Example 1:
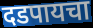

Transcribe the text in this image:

दडपायचा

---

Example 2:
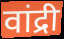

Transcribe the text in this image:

वांद्री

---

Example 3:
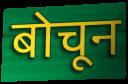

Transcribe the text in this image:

बोचून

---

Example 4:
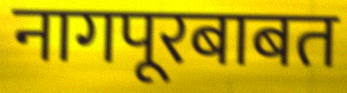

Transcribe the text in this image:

नागपूरबाबत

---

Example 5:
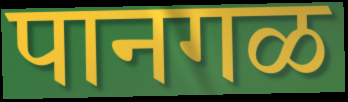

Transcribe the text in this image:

पानगळ